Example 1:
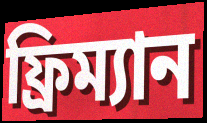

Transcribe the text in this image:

ফ্রিম্যান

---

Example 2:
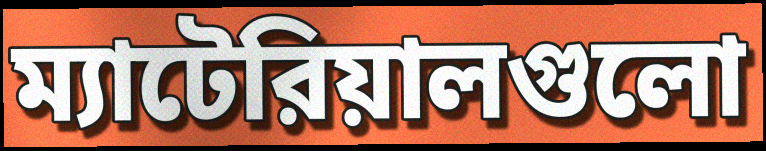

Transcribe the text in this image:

ম্যাটেরিয়ালগুলো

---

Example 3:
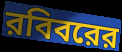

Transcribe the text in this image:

রবিবরের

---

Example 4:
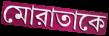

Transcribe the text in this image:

মোরাতাকে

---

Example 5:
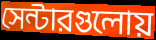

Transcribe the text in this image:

সেন্টারগুলোয়